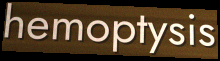
hemoptysis